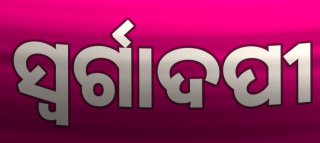
ସ୍ବର୍ଗାଦପୀ